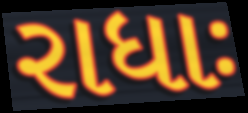
રાધાઃ